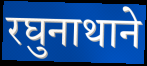
रघुनाथाने